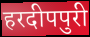
हरदीपपुरी